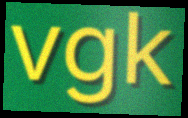
vgk